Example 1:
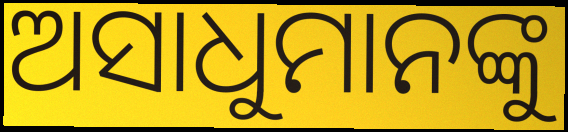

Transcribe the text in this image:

ଅସାଧୁମାନଙ୍କୁ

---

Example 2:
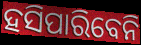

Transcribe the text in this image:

ହସିପାରିବେନି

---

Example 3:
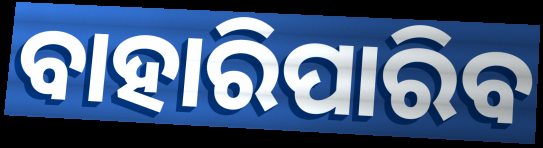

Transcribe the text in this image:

ବାହାରିପାରିବ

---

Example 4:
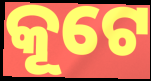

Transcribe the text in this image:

କୂଟେ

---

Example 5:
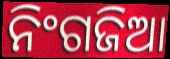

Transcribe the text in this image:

ନିଂଗଜିଆ